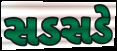
સડસડે